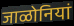
जाळोनियां